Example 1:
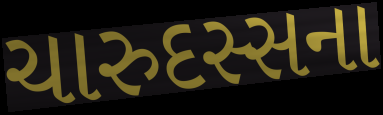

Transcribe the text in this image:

ચારુદસ્સના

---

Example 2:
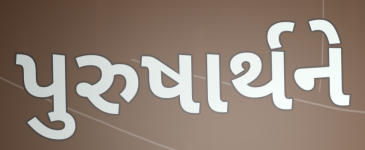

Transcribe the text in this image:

પુરુષાર્થને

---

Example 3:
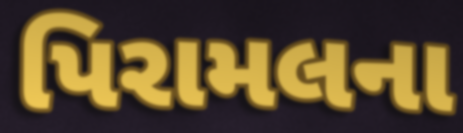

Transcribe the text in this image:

પિરામલના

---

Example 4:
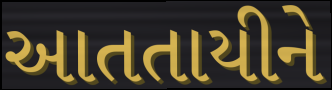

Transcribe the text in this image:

આતતાયીને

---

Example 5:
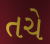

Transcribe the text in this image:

તચે